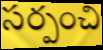
సర్పంచి